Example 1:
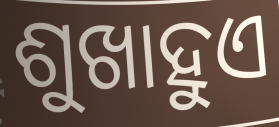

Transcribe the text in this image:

ଶୁଖାହୁଏ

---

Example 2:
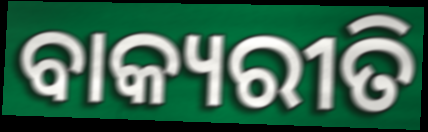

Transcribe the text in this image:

ବାକ୍ୟରୀତି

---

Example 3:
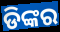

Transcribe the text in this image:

ଡିଙ୍କର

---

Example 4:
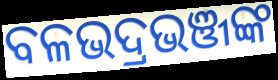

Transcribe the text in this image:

ବଳଭଦ୍ରଭଞ୍ଜଙ୍କ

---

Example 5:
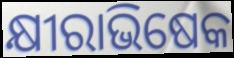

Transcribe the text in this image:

କ୍ଷୀରାଭିଷେକ